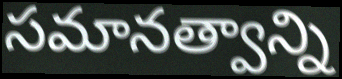
సమానత్వాన్ని